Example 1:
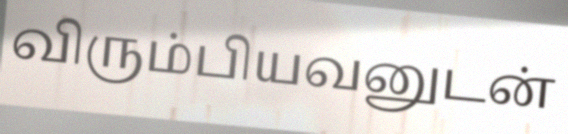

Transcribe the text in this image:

விரும்பியவனுடன்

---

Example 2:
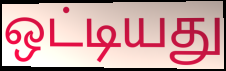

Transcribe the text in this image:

ஒட்டியது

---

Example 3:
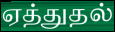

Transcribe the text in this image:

ஏத்துதல்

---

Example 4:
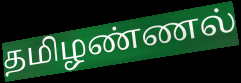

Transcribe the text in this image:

தமிழண்ணல்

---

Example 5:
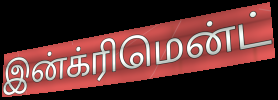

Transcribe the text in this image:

இன்க்ரிமென்ட்